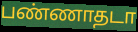
பண்ணாதடா